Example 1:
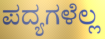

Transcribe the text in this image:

ಪದ್ಯಗಳೆಲ್ಲ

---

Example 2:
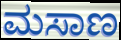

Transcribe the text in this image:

ಮಸಾಣ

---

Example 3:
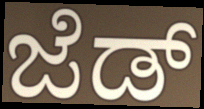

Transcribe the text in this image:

ಜೆಡ್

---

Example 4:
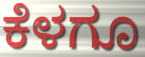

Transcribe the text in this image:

ಕೆಳಗೂ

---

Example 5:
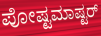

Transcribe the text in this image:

ಪೋಷ್ಟಮಾಷ್ಟರ್